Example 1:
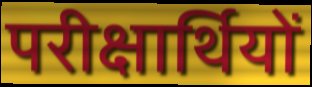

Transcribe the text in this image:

परीक्षार्थियों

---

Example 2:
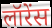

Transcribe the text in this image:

लॉरेंस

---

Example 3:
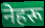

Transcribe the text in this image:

नेहरू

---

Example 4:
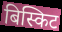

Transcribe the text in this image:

बिस्किट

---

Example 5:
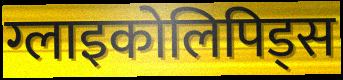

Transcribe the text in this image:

ग्लाइकोलिपिड्स